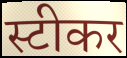
स्टीकर